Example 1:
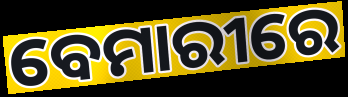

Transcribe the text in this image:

ବେମାରୀରେ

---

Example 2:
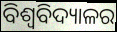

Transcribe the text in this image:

ବିଶ୍ୱବିଦ୍ୟାଳର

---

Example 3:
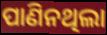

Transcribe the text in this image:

ପାଣିନଥିଲା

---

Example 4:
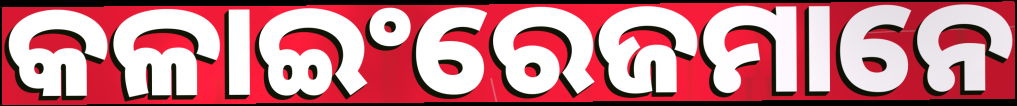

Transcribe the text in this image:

କଳାଇଂରେଜମାନେ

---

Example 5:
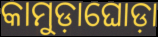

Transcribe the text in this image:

କାମୁଡ଼ାଘୋଡ଼ା